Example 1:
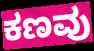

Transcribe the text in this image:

ಕಣವು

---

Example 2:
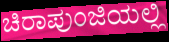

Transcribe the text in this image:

ಚಿರಾಪುಂಜಿಯಲ್ಲಿ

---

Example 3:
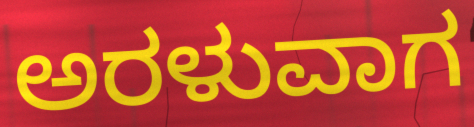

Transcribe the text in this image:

ಅರಳುವಾಗ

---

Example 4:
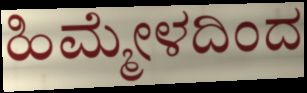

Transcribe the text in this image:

ಹಿಮ್ಮೇಳದಿಂದ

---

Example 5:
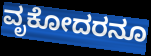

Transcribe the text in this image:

ವೃಕೋದರನೂ